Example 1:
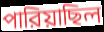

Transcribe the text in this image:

পারিয়াছিল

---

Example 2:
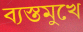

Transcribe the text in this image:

ব্যস্তমুখে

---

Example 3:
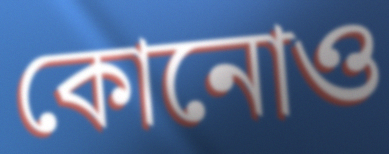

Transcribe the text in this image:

কোনোও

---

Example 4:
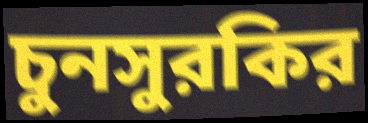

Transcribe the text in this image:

চুনসুরকির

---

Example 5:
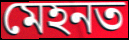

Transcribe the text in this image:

মেহনত